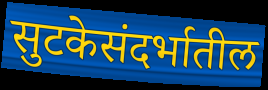
सुटकेसंदर्भातील